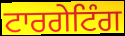
ਟਾਰਗੇਟਿੰਗ